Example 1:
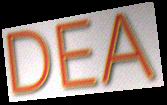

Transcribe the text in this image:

DEA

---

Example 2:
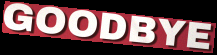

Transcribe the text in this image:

GOODBYE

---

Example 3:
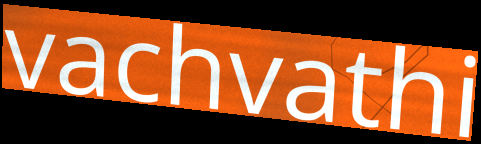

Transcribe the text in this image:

vachvathi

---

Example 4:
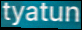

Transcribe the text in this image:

tyatun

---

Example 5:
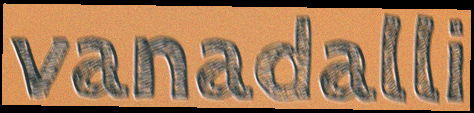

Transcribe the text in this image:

vanadalli